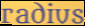
radius